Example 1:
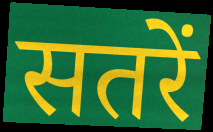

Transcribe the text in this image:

सतरें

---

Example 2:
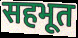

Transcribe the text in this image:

सहभूत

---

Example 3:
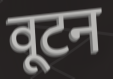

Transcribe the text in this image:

वूटन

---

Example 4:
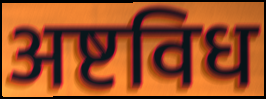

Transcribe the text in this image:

अष्टविध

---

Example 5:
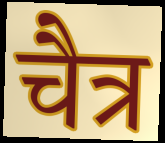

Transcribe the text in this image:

चैत्र